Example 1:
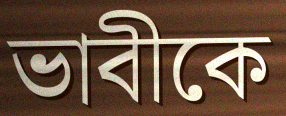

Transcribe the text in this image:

ভাবীকে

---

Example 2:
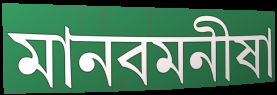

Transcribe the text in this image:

মানবমনীষা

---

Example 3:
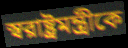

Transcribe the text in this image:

স্বরাষ্ট্রমন্ত্রীকে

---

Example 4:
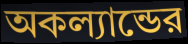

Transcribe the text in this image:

অকল্যান্ডের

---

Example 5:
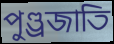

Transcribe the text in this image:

পুণ্ড্রজাতি